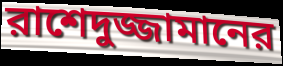
রাশেদুজ্জামানের